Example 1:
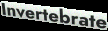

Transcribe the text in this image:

Invertebrate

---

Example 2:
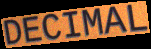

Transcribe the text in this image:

DECIMAL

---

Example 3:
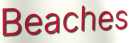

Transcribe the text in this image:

Beaches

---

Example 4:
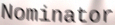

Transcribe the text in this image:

Nominator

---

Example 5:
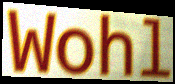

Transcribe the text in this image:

Wohl